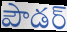
పౌడర్